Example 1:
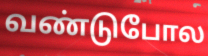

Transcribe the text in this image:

வண்டுபோல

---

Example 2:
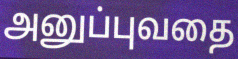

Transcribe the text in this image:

அனுப்புவதை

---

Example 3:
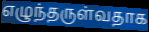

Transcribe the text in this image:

எழுந்தருள்வதாக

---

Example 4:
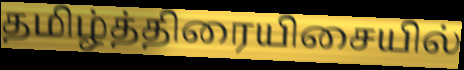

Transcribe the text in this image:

தமிழ்த்திரையிசையில்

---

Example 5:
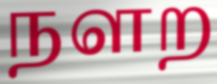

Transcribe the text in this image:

நளற